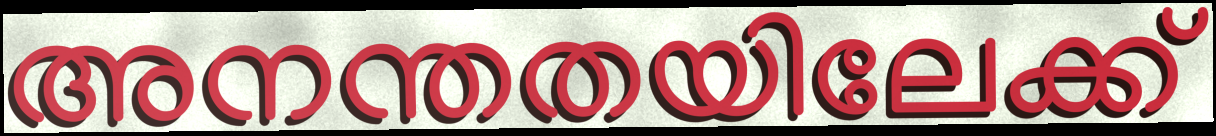
അനന്തതയിലേക്ക്